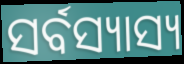
ସର୍ବସ୍ୟାସ୍ୟ